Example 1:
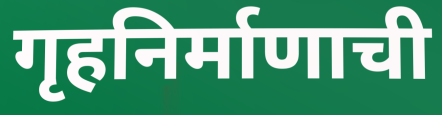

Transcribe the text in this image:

गृहनिर्माणाची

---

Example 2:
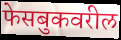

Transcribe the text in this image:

फेसबुकवरील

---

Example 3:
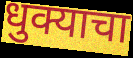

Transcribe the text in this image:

धुक्याचा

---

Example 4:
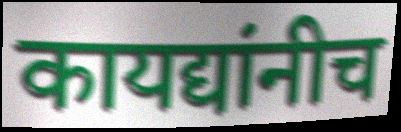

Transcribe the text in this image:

कायद्यांनीच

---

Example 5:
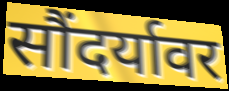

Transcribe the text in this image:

सौंदर्यावर